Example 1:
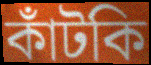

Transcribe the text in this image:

কাঁটকি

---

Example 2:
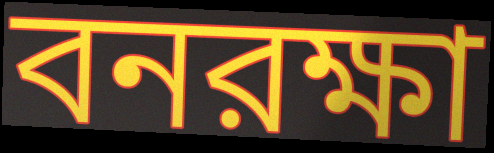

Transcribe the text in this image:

বনরক্ষা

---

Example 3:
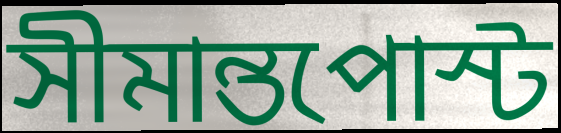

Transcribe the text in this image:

সীমান্তপোস্ট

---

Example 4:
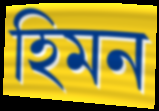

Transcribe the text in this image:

হিমন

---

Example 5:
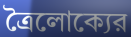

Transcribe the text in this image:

ত্রৈলোক্যের